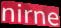
nirne